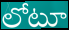
లోటూ